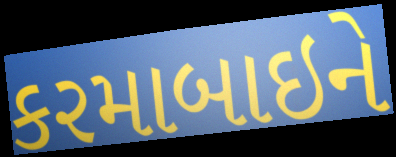
કરમાબાઇને